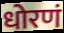
धोरणं